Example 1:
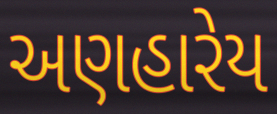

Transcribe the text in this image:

અણહારેય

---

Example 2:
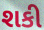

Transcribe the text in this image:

શકી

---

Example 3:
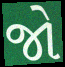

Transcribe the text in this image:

જો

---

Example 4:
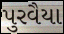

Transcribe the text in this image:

પુરવૈયા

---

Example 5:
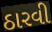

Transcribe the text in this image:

ઠારવી